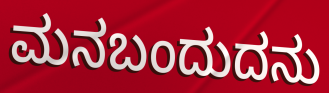
ಮನಬಂದುದನು